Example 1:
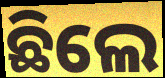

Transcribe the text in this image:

ଛିଲେ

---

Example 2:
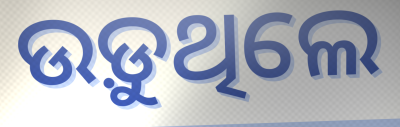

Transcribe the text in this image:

ଉଡ଼ୁଥିଲେ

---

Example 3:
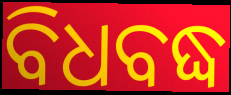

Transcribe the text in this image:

ବିଧବଦ୍ଧ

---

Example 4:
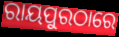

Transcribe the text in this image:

ରାୟପୁରଠାରେ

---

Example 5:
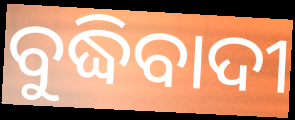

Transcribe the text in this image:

ବୁଦ୍ଧିବାଦୀ